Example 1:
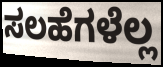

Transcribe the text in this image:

ಸಲಹೆಗಳೆಲ್ಲ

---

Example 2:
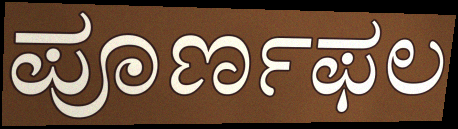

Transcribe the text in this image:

ಪೂರ್ಣಫಲ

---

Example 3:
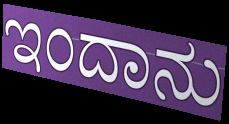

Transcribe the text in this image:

ಇಂದಾನು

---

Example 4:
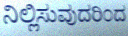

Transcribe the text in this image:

ನಿಲ್ಲಿಸುವುದರಿಂದ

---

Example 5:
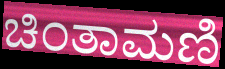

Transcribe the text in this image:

ಚಿಂತಾಮಣಿ